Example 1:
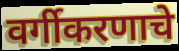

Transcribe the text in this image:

वर्गीकरणाचे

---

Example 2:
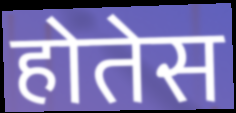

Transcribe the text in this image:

होतेस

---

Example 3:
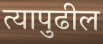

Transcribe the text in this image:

त्यापुढील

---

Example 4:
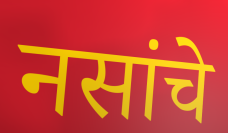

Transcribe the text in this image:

नसांचे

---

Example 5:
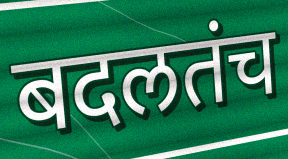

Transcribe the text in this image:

बदलतंच